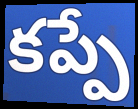
కప్పే